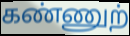
கண்ணுற்